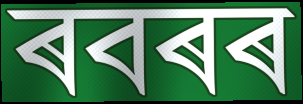
ৰবৰৰ